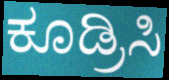
ಕೂಡ್ರಿಸಿ